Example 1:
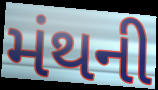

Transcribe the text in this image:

મંથની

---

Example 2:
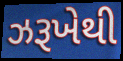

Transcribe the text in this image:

ઝરૂખેથી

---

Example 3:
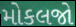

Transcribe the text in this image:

મોકલજો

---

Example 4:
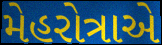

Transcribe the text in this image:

મેહરોત્રાએ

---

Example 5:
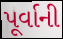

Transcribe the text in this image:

પૂર્વાની